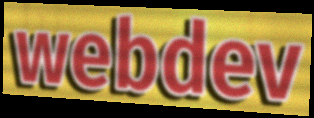
webdev